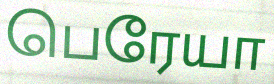
பெரேயா